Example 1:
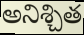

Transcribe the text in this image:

అనిశ్చిత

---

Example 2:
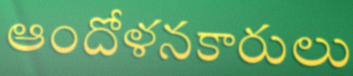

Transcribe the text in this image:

ఆందోళనకారులు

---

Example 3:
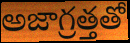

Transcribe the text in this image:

అజాగ్రత్తతో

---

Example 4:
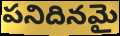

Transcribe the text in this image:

పనిదినమై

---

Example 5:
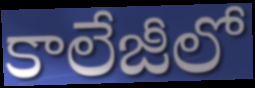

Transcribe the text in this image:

కాలేజీలో